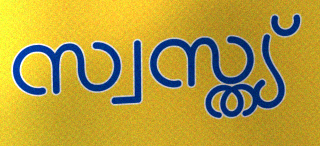
സ്വസ്ത്യ്